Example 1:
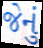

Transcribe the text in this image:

જેનું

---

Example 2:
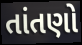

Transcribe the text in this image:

તાંતણો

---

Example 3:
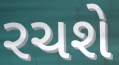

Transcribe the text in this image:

રચશે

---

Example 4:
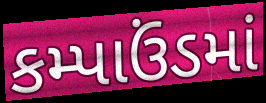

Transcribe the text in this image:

કમ્પાઉંડમાં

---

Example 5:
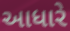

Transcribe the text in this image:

આધારે